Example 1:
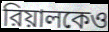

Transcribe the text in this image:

রিয়ালকেও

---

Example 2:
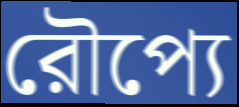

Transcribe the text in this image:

রৌপ্যে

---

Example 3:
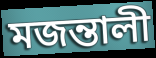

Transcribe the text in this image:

মজন্তালী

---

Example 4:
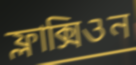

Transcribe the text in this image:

ফ্লাক্সিওন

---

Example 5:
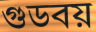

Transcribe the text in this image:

গুডবয়